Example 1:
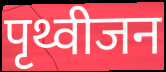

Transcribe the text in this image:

पृथ्वीजन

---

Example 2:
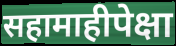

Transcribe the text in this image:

सहामाहीपेक्षा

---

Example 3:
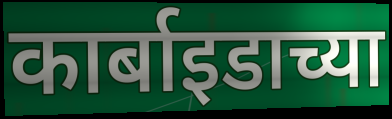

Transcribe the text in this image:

कार्बाइडाच्या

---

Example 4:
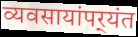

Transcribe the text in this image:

व्यवसायांपर्यंत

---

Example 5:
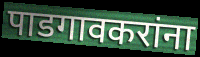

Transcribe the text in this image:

पाडगावकरांना